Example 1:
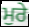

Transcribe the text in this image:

ਮੁਰੇ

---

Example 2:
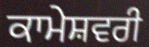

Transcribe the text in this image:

ਕਾਮੇਸ਼ਵਰੀ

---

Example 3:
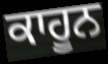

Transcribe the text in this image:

ਕਾਹੂਨ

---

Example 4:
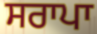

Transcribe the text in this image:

ਸਰਾਪਾ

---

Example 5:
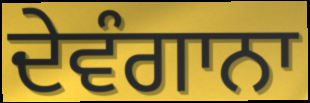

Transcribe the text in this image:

ਦੇਵੰਗਾਨਾ